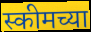
स्कीमच्या